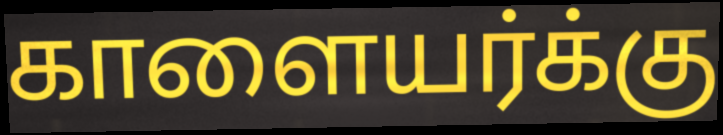
காளையர்க்கு